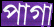
পাগা